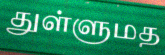
துள்ளுமத